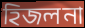
হিজলনা